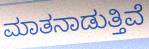
ಮಾತನಾಡುತ್ತಿವೆ